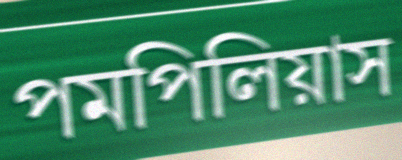
পমপিলিয়াস